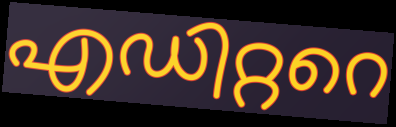
എഡിറ്ററെ